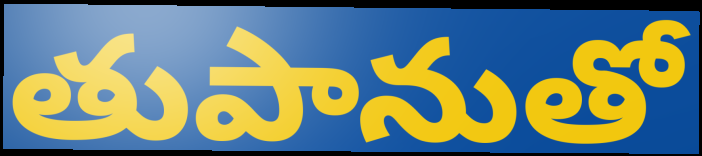
తుపానుతో